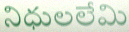
నిధులలేమి